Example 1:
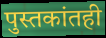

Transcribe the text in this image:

पुस्तकांतही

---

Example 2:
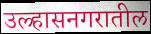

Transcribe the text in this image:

उल्हासनगरातील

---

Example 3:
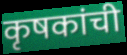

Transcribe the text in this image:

कृषकांची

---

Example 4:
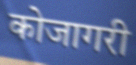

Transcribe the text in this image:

कोजागरी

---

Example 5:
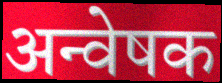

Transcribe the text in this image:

अन्वेषक